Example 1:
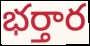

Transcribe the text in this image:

భర్తార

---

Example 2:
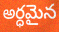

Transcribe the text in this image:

అర్ధమైన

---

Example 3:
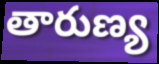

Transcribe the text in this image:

తారుణ్య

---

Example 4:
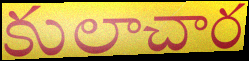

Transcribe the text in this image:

కులాచార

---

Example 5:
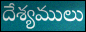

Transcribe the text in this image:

దేశ్యములు